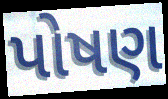
પોષણ